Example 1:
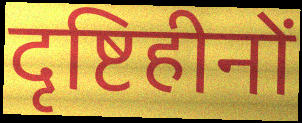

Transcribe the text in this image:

दृष्टिहीनों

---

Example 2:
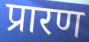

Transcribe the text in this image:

प्रारण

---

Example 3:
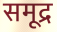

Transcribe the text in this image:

समूद्र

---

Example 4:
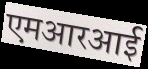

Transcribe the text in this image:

एमआरआई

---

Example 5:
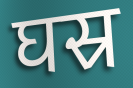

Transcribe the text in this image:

घस्र